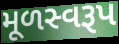
મૂળસ્વરૂપ